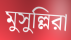
মুসুল্লিরা